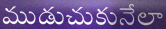
ముడుచుకునేలా